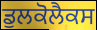
ਡੁਲਕੋਲੈਕਸ